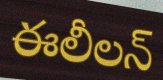
ఈలీలన్